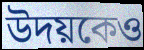
উদয়কেও